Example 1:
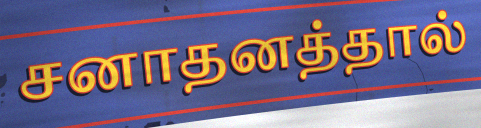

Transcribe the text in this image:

சனாதனத்தால்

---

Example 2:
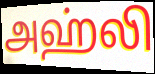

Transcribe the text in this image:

அஹ்லி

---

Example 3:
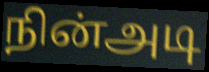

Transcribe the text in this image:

நின்அடி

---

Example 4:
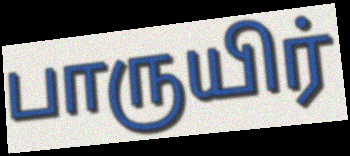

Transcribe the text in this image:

பாருயிர்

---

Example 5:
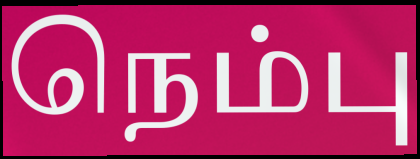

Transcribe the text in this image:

நெம்பு